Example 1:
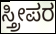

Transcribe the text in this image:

ಸ್ತ್ರೀಪರ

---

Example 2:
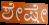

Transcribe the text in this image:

ಶೇಷೇ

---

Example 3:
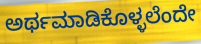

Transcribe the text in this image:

ಅರ್ಥಮಾಡಿಕೊಳ್ಳಲೆಂದೇ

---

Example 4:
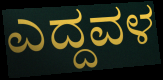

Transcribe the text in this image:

ಎದ್ದವಳ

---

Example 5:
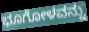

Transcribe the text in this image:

ಭೂಗೋಳವನ್ನು